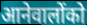
आनेवालोंको